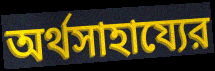
অর্থসাহায্যের